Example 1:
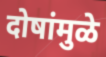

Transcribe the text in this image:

दोषांमुळे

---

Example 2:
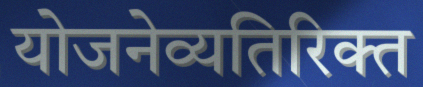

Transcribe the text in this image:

योजनेव्यतिरिक्त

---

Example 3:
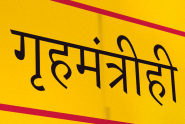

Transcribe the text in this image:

गृहमंत्रीही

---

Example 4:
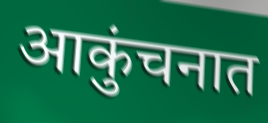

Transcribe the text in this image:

आकुंचनात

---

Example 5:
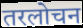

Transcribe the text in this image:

तरलोचन